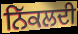
ਨਿੱਕਲਦੀ